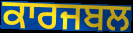
ਕਾਰਜਬਲ